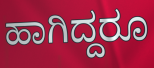
ಹಾಗಿದ್ದರೂ